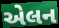
એલન